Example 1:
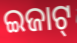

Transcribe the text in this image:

ଇଜାଟ୍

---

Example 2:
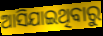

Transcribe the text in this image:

ଆସିଯାଇଥିବାରୁ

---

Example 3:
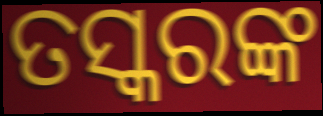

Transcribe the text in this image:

ତସ୍କରଙ୍କ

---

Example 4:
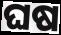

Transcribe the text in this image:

ଘଷ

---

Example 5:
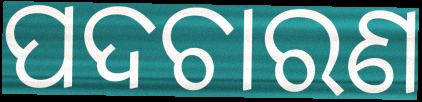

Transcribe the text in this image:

ପଦଚାରଣ